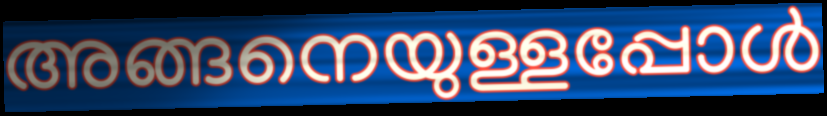
അങ്ങനെയുള്ളപ്പോൾ